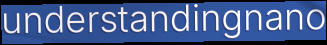
understandingnano